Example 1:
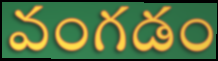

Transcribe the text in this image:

వంగడం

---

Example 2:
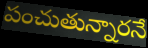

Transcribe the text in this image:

పంచుతున్నారనే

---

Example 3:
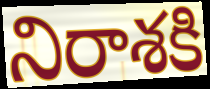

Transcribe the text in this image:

నిరాశకి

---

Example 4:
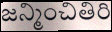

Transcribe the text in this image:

జన్మించితిరి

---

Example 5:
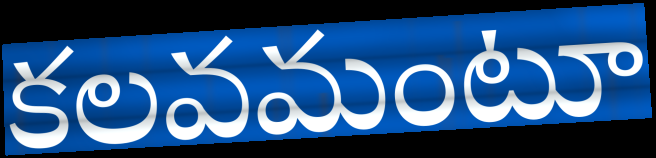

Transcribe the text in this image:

కలవమంటూ